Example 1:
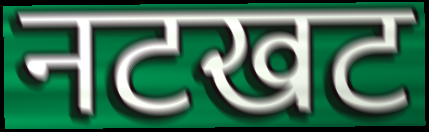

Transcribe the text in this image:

नटखट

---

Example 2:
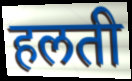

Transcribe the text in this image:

हलती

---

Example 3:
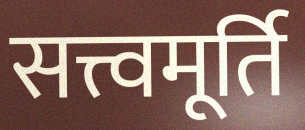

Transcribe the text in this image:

सत्त्वमूर्ति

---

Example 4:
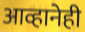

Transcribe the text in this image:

आव्हानेही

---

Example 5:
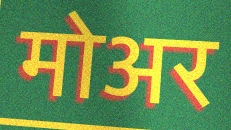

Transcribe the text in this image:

मोअर